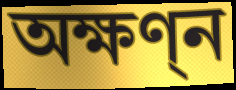
অক্ষণ্ন